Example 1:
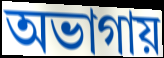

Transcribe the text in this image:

অভাগায়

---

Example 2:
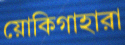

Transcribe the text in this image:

য়োকিগাহারা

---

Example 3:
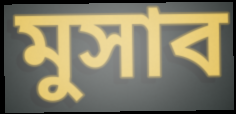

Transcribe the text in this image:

মুসাব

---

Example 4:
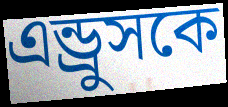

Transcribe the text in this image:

এন্ড্রুসকে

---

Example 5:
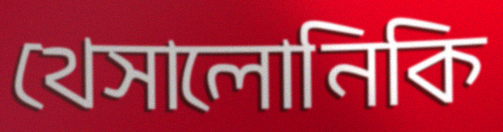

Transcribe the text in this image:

থেসালোনিকি